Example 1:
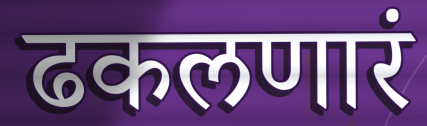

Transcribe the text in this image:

ढकलणारं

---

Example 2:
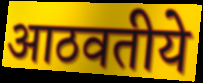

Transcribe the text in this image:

आठवतीये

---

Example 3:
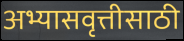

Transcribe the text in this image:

अभ्यासवृत्तीसाठी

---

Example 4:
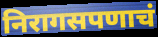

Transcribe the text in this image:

निरागसपणाचं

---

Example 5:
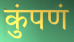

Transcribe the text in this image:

कुंपणं